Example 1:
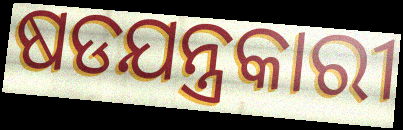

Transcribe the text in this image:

ଷଡଯନ୍ତ୍ରକାରୀ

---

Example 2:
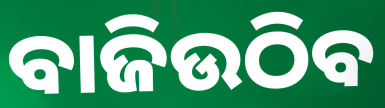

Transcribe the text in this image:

ବାଜିଉଠିବ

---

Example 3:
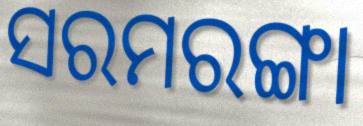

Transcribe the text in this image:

ସରମରଙ୍ଗା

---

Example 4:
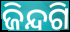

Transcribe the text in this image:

ଜିନ୍ଦଗି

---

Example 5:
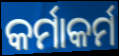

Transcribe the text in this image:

କର୍ମାକର୍ମ